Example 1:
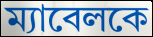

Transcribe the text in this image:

ম্যাবেলকে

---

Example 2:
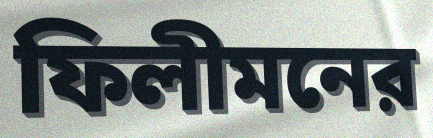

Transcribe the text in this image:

ফিলীমনের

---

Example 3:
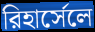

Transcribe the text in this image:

রিহার্সেলে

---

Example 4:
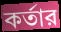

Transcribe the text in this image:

কর্তার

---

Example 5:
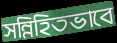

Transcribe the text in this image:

সন্নিহিতভাবে